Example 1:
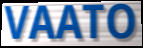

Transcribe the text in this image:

VAATO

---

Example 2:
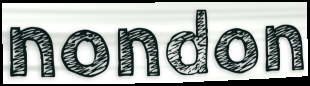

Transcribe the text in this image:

nondon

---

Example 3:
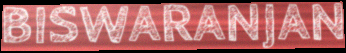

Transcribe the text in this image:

BISWARANJAN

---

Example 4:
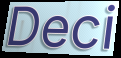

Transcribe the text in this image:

Deci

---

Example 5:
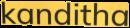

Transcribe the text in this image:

kanditha